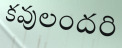
కవులందరి